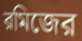
রমিজের